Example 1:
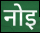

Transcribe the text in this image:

नोइ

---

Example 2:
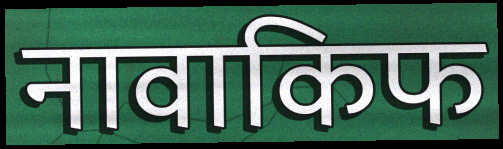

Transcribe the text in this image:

नावाकिफ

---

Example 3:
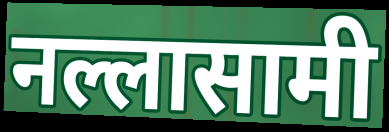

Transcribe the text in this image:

नल्लासामी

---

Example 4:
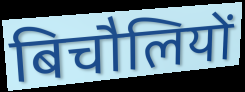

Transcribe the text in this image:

बिचौलियों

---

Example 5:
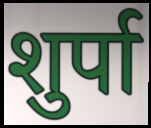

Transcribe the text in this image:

शुर्पा